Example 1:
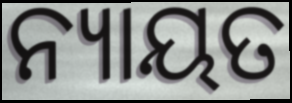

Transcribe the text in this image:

ନ୍ୟାୟତ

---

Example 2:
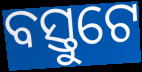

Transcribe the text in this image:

ବସ୍ତୁଟେ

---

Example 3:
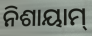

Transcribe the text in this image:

ନିଶାୟାମ୍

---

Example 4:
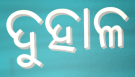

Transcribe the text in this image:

ଦୁହାଳ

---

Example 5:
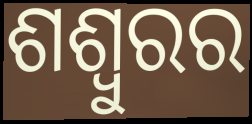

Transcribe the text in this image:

ଶଶ୍ୱୁରର